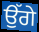
ਉੱਗੇ